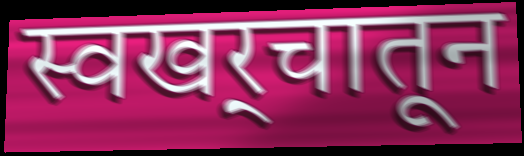
स्वखर्चातून